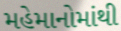
મહેમાનોમાંથી